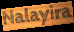
Nalayira